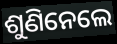
ଶୁଣିନେଲେ